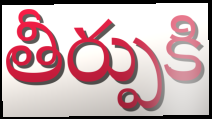
తీర్పుకి